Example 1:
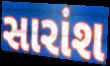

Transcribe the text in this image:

સારાંશ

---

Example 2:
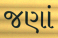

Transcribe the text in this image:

જણાં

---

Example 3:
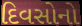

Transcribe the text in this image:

દિવસોનો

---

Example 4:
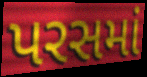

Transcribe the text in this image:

પરસમાં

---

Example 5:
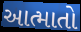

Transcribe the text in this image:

આત્માતો